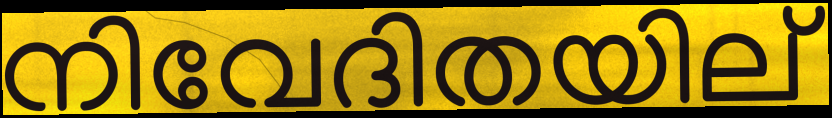
നിവേദിതയില്